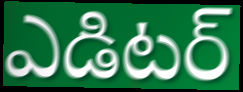
ఎడిటర్